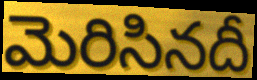
మెరిసినదీ